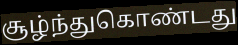
சூழ்ந்துகொண்டது